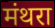
मंथरा